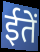
ईतें